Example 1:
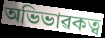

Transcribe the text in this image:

অভিভাৱকত্ব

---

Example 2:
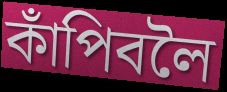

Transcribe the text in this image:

কাঁপিবলৈ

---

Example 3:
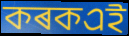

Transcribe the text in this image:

কৰকএই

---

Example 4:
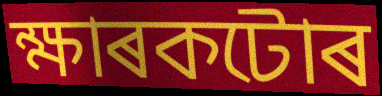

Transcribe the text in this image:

ক্ষাৰকটোৰ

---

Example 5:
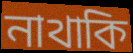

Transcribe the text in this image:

নাথাকি